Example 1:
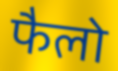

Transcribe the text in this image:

फैलो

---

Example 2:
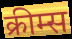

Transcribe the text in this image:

क्रीम्‍स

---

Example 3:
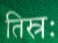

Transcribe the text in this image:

तिस्रः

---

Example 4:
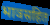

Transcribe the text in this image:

भावसहित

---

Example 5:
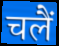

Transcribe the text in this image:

चलैं